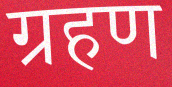
ग्रहण